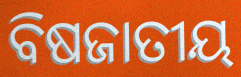
ବିଷଜାତୀୟ